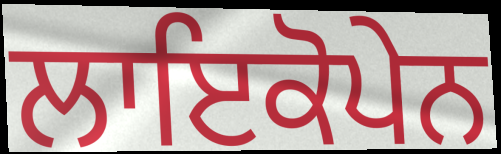
ਲਾਇਕੋਪੇਨ